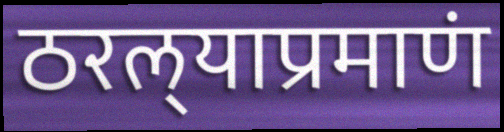
ठरल्याप्रमाणं